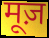
मूज़